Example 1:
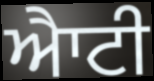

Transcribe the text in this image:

ਐਾਟੀ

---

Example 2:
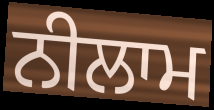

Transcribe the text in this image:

ਨੀਲਾਮ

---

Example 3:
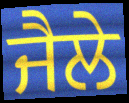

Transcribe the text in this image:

ਜੈਲੇ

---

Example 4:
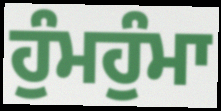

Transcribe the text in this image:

ਹੁੰਮਹੁੰਮਾ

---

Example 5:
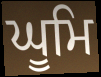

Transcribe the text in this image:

ਘੂਮਿ